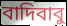
বাদিবাবু